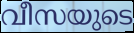
വീസയുടെ